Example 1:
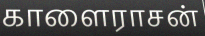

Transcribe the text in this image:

காளைராசன்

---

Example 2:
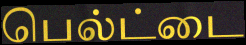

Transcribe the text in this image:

பெல்ட்டை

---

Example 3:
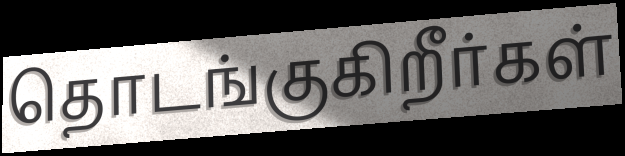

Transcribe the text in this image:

தொடங்குகிறீர்கள்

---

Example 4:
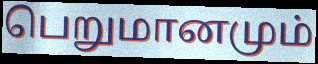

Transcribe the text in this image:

பெறுமானமும்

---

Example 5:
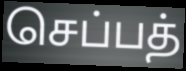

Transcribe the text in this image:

செப்பத்